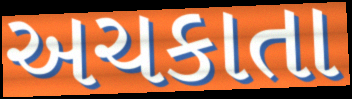
અચકાતા